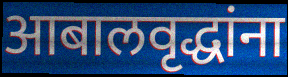
आबालवृद्धांना